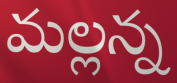
మల్లన్న